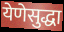
येणेसुद्धा